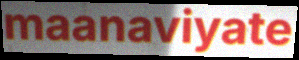
maanaviyate